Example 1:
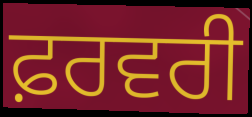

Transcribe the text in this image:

ਫ਼ਰਵਰੀ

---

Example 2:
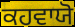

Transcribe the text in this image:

ਕਹਵਾਯੋ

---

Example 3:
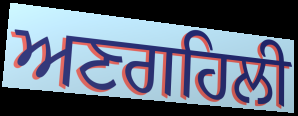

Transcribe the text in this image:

ਅਣਗਹਿਲੀ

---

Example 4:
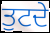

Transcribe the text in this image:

ਤੁਟਦੇ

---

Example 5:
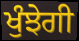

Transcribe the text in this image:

ਖੁੰਝੇਗੀ